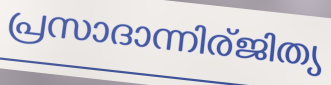
പ്രസാദാന്നിര്ജിത്യ